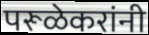
परूळेकरांनी